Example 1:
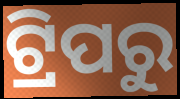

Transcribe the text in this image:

ଟ୍ରିପରୁ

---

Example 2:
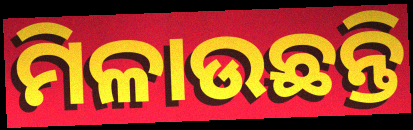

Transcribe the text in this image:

ମିଳାଉଛନ୍ତି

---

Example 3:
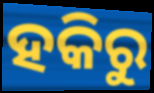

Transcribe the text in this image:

ହକିରୁ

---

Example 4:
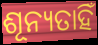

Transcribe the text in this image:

ଶୂନ୍ୟତାହିଁ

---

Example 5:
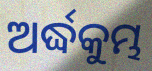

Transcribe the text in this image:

ଅର୍ଦ୍ଧକୁମ୍ଭ